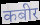
कबीर